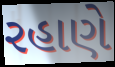
રહાણે